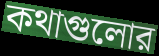
কথাগুলোর